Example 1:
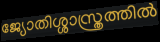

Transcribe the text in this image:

ജ്യോതിശ്ശാസ്ത്രത്തിൽ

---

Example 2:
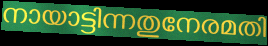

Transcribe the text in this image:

നായാട്ടിന്നതുനേരമതി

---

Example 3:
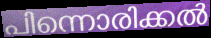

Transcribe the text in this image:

പിന്നൊരിക്കൽ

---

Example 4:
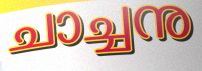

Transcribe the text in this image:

ചാച്ചനു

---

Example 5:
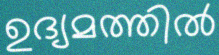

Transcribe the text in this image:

ഉദ്യമത്തിൽ